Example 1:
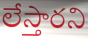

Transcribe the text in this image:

లేస్తారని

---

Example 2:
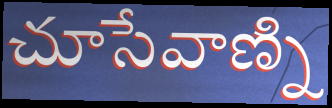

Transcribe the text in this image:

చూసేవాణ్ని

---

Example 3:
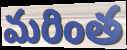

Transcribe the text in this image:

మరింత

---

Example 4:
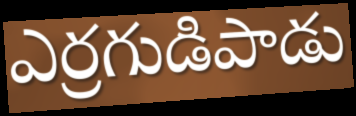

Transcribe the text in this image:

ఎర్రగుడిపాడు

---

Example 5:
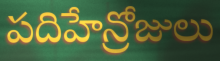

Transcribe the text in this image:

పదిహేన్రోజులు